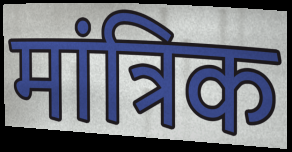
मांत्रिक